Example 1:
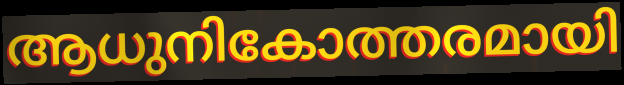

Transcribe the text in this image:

ആധുനികോത്തരമായി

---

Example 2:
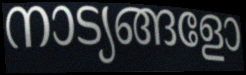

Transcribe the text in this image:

നാട്യങ്ങളോ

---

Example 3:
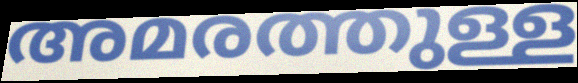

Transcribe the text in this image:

അമരത്തുള്ള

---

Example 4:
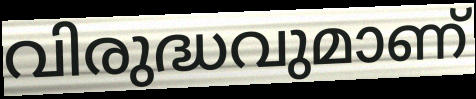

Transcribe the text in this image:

വിരുദ്ധവുമാണ്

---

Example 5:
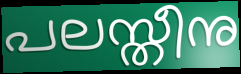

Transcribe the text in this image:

പലസ്തീനു